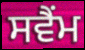
ਸਵੈਂਮ